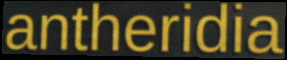
antheridia